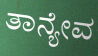
ತಾನ್ಯೇವ